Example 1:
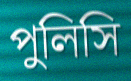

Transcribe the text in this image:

পুলিসি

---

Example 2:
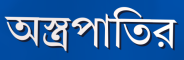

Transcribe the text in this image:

অস্ত্রপাতির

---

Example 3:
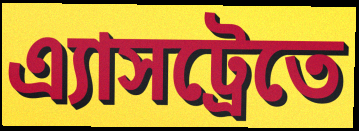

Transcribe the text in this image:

এ্যাসট্রেতে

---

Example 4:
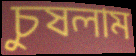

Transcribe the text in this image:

চুষলাম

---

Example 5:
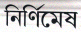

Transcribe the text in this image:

নির্ণিমেষ